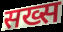
सख्स